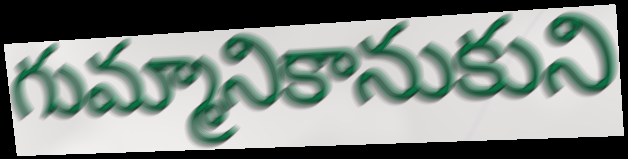
గుమ్మానికానుకుని